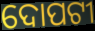
ଦୋପଟୀ